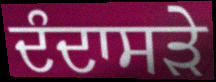
ਦੰਦਾਸੜੇ